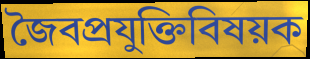
জৈবপ্রযুক্তিবিষয়ক